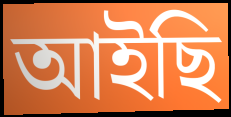
আইছি